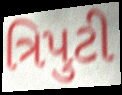
ત્રિપુટી